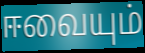
ஈவையும்